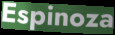
Espinoza